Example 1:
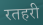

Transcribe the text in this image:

रतहरी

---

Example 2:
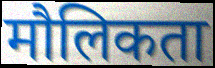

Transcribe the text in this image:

मौलिकता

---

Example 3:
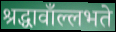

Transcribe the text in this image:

श्रद्धावाँल्लभते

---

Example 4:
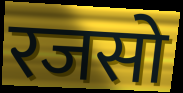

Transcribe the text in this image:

रजसो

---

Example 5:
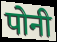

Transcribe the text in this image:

पोनी